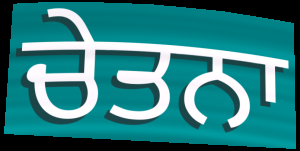
ਚੇਤਨਾ